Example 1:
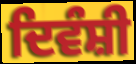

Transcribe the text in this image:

ਦਿਵੰਸ਼ੀ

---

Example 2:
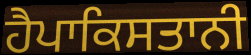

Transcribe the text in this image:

ਹੈਪਾਕਿਸਤਾਨੀ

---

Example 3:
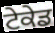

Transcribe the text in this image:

ਟੇਕੇਡ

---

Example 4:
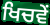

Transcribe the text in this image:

ਖਿਚਵੇਂ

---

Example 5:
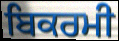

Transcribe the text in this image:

ਬਿਕਰਮੀ